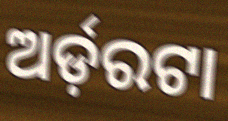
ଅର୍ଡ଼ରଟା